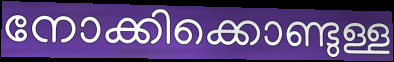
നോക്കിക്കൊണ്ടുള്ള